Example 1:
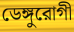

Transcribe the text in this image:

ডেঙ্গুরোগী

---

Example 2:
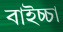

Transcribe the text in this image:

বাইচ্চা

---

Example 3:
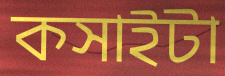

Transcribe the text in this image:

কসাইটা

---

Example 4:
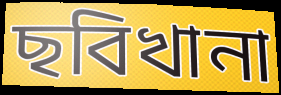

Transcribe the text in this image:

ছবিখানা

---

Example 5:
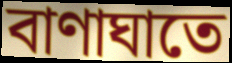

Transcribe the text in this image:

বাণাঘাতে